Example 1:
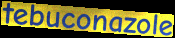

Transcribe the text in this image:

tebuconazole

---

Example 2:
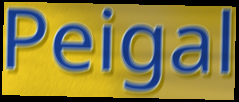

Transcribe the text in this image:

Peigal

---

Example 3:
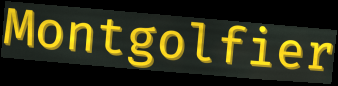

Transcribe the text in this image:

Montgolfier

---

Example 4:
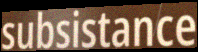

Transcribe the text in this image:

subsistance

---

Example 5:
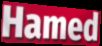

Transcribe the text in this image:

Hamed